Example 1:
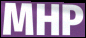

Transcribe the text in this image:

MHP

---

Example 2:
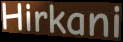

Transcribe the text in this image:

Hirkani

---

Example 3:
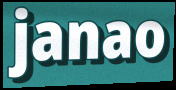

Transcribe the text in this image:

janao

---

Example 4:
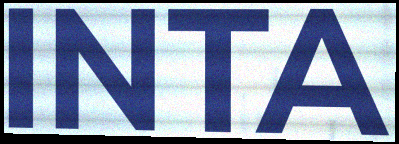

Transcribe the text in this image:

INTA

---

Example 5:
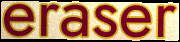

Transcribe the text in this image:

eraser